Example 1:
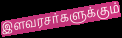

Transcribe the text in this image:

இளவரசர்களுக்கும்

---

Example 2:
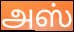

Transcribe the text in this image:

அஸ்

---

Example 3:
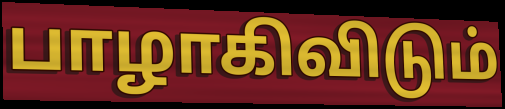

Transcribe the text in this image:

பாழாகிவிடும்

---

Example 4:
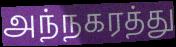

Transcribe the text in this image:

அந்நகரத்து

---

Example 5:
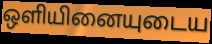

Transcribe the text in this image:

ஒளியினையுடைய